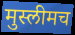
मुस्लीमच